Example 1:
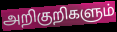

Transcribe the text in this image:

அறிகுறிகளும்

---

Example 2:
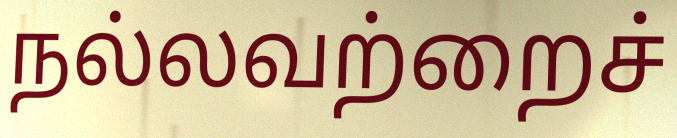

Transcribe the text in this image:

நல்லவற்றைச்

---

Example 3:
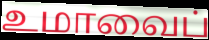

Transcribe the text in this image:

உமாவைப்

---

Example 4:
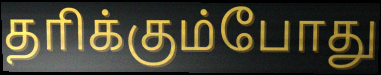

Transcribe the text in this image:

தரிக்கும்போது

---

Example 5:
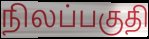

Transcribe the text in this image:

நிலப்பகுதி